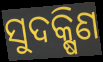
ସୁଦକ୍ଷିଣ